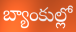
బ్యాంకుల్లో